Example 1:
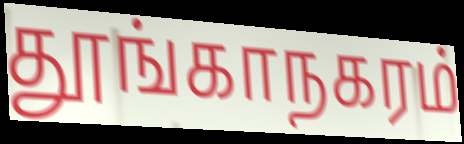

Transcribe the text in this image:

தூங்காநகரம்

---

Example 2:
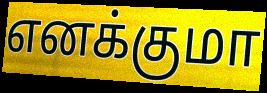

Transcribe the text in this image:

எனக்குமா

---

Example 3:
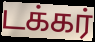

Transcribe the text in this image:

டக்கர்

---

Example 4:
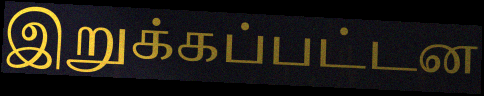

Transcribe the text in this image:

இறுக்கப்பட்டன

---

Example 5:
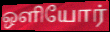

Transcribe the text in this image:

ஒளியோர்